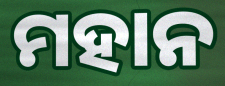
ମହାନ